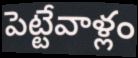
పెట్టేవాళ్లం